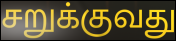
சறுக்குவது